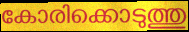
കോരിക്കൊടുത്തു